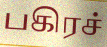
பகிரச்